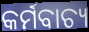
କର୍ମବାଚ୍ୟ